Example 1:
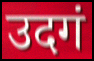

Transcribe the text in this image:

उदगं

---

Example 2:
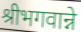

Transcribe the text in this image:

श्रीभगवान्ने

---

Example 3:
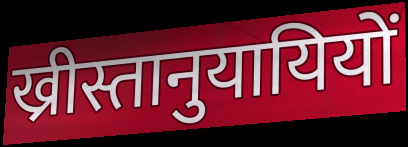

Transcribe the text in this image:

ख्रीस्तानुयायियों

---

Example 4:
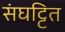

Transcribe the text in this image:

संघट्टित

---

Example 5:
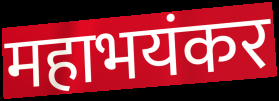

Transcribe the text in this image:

महाभयंकर